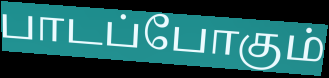
பாடப்போகும்